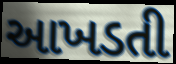
આખડતી